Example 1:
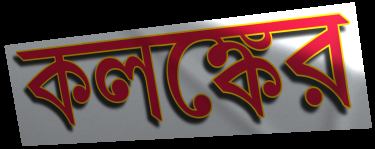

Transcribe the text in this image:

কলঙ্কের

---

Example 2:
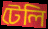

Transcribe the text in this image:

টেলি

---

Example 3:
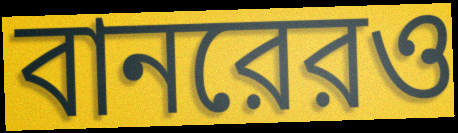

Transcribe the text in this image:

বানরেরও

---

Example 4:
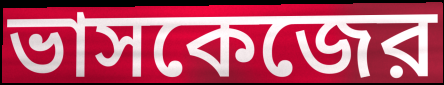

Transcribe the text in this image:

ভাসকেজের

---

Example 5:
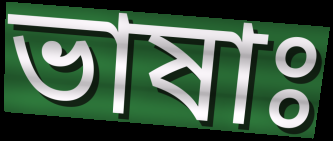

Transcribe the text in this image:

ভাষাঃ